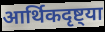
आर्थिकदृष्ट्या